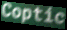
Coptic